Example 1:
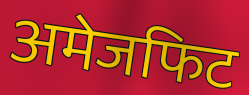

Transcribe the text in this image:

अमेजफिट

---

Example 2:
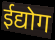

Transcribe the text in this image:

ईद्योग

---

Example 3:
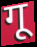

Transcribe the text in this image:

गू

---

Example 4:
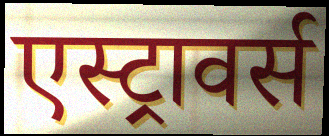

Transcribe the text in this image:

एस्ट्रावर्स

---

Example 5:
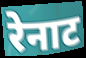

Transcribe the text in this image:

रेनाट